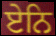
ਏਨਿ